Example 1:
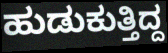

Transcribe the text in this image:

ಹುಡುಕುತ್ತಿದ್ದ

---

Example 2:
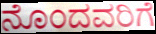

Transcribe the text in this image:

ನೊಂದವರಿಗೆ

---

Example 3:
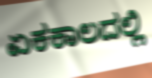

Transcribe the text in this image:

ಏಕಕಾಲದಲ್ಲಿ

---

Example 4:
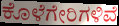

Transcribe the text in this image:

ಕೊಳೆಗೇರಿಗಳಿವೆ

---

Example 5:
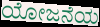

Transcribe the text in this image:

ಯೋಜನೆಯ